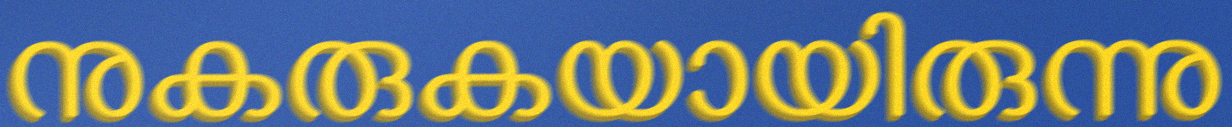
നുകരുകയായിരുന്നു